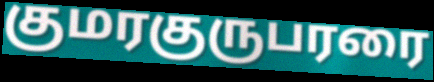
குமரகுருபரரை